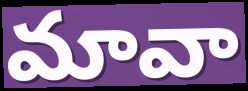
మావా